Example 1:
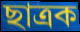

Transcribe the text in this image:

ছাত্ৰক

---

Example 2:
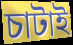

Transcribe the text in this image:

চাটাই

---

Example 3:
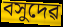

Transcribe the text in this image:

বসুদেৱ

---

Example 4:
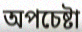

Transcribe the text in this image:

অপচেষ্টা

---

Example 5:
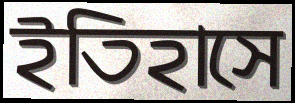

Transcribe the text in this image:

ইতিহাসে